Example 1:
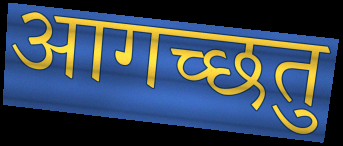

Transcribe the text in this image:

आगच्छतु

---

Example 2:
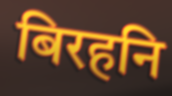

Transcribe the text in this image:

बिरहनि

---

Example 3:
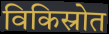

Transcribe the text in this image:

विकिस्रोत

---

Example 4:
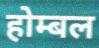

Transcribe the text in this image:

होम्बल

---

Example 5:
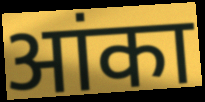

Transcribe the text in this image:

आंका